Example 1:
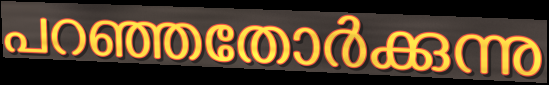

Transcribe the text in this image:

പറഞ്ഞതോർക്കുന്നു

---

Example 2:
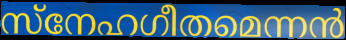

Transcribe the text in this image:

സ്നേഹഗീതമെന്നൻ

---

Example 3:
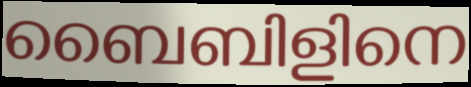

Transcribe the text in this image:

ബൈബിളിനെ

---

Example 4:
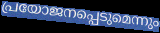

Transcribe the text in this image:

പ്രയോജനപ്പെടുമെന്നും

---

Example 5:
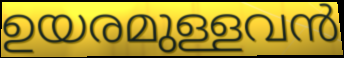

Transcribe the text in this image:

ഉയരമുള്ളവൻ